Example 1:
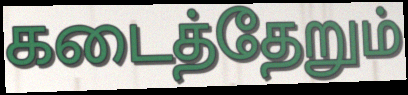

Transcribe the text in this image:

கடைத்தேறும்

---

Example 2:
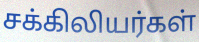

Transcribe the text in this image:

சக்கிலியர்கள்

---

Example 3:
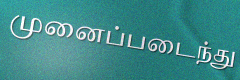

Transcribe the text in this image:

முனைப்படைந்து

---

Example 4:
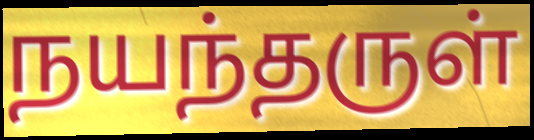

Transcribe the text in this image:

நயந்தருள்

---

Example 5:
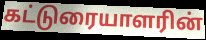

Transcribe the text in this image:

கட்டுரையாளரின்